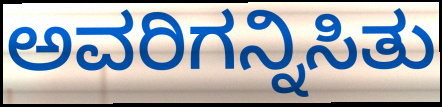
ಅವರಿಗನ್ನಿಸಿತು